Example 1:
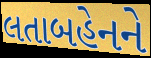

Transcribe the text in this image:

લતાબહેનને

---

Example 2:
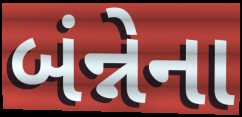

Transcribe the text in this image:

બંન્નેના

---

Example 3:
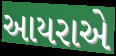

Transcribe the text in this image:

આયરાએ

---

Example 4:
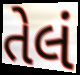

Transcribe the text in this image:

તેલં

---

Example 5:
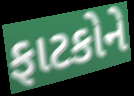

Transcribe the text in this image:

ફાટકોને